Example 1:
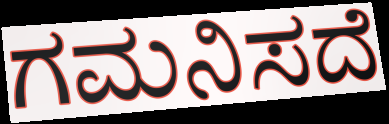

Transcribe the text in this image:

ಗಮನಿಸದೆ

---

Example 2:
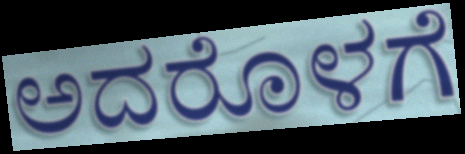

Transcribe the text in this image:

ಅದರೊಳಗೆ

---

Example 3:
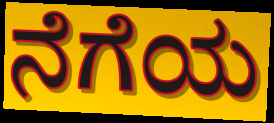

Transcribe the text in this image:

ನೆಗೆಯ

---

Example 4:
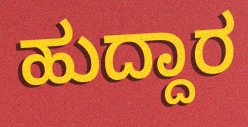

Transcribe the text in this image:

ಹುದ್ದಾರ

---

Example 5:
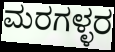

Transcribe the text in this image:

ಮರಗಳ್ಳರ